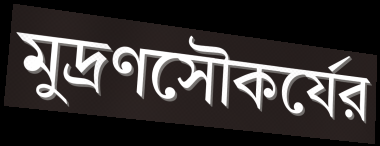
মুদ্রণসৌকর্যের